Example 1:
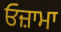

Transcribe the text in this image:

ਓਜ਼ਾਮਾ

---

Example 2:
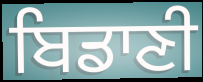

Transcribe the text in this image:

ਬਿਡਾਣੀ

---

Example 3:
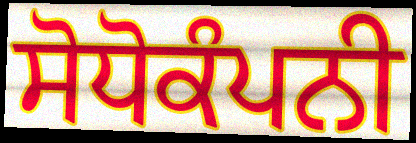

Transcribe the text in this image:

ਸੋਧੋਕੰਪਨੀ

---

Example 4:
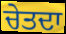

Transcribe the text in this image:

ਚੇਤਦਾ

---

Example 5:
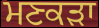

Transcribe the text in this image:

ਮਣਕੜਾ